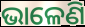
ଭାଳେଣି